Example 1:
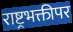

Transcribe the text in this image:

राष्ट्रभक्तीपर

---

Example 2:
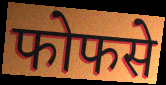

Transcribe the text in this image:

फोफसे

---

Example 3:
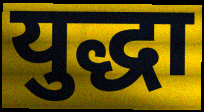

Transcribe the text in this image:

युद्धा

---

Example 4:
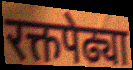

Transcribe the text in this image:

रक्तपेढ्या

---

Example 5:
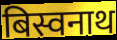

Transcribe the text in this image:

बिस्वनाथ